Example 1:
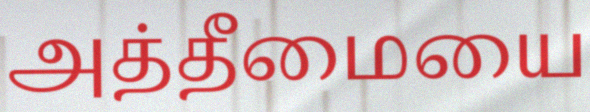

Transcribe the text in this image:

அத்தீமையை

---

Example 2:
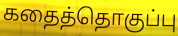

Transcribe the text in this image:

கதைத்தொகுப்பு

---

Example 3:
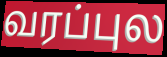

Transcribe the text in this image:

வரப்புல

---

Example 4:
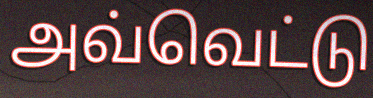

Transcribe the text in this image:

அவ்வெட்டு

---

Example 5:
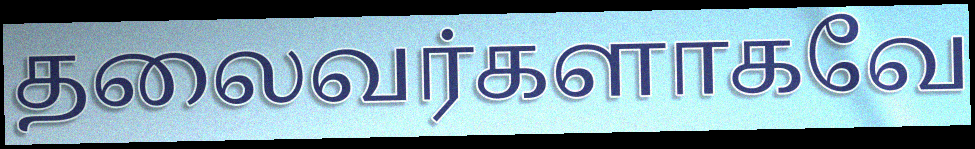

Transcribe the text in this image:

தலைவர்களாகவே